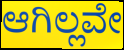
ಆಗಿಲ್ಲವೇ